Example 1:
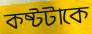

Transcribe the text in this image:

কষ্টটাকে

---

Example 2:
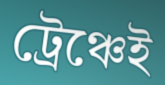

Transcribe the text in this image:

ট্রেঞ্চেই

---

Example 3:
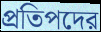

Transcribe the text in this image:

প্রতিপদের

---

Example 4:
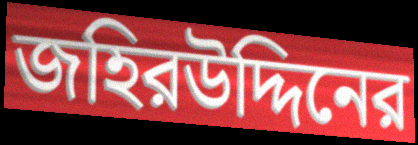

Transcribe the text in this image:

জহিরউদ্দিনের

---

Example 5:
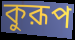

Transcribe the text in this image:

কুরূপ